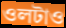
ওলটাও